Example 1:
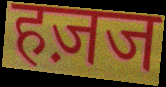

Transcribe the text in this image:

हज़ज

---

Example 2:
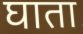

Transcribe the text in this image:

घाता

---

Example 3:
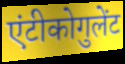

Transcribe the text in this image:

एंटीकोगुलेंट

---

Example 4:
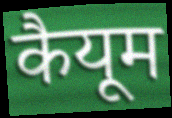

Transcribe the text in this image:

कैयूम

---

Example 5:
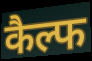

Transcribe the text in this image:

कैल्फ